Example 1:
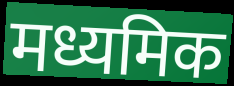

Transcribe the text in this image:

मध्यमिक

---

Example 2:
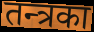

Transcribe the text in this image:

तन्त्रका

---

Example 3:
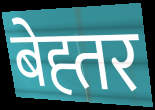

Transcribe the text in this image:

बेह्तर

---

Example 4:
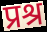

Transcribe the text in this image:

प्रश्र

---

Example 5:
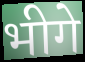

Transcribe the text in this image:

भीगे